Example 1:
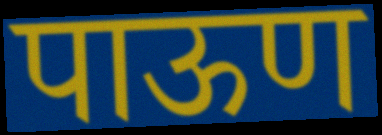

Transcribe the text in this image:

पाऊण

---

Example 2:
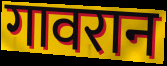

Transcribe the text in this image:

गावरान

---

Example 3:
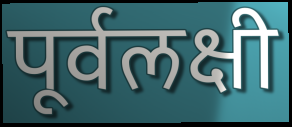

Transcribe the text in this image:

पूर्वलक्षी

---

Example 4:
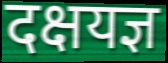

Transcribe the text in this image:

दक्षयज्ञ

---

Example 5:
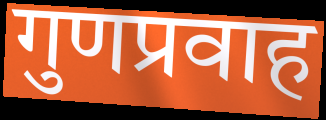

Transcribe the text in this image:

गुणप्रवाह